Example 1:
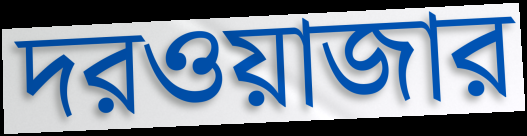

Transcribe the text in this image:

দরওয়াজার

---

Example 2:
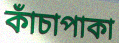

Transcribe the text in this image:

কাঁচাপাকা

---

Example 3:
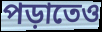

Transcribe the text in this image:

পড়াতেও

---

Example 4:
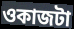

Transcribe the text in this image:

ওকাজটা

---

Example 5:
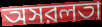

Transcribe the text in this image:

অসরলতা